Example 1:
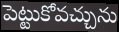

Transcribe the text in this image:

పెట్టుకోవచ్చును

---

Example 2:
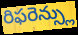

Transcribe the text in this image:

రిఫరెన్స్లు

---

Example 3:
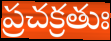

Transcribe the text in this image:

ప్రచక్రతుః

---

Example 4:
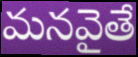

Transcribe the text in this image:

మనవైతే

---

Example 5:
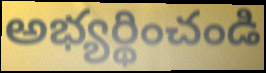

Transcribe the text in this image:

అభ్యర్థించండి